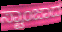
ಸ್ಟಾಂಜಾದ